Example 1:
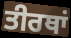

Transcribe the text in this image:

ਤੀਰਥਾਂ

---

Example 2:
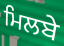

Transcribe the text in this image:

ਮਿਲਬੇ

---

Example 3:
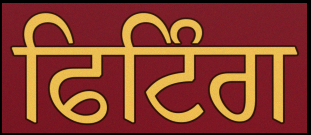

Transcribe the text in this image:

ਫਿਟਿੰਗ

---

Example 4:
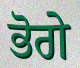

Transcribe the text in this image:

ਭੋਗੇ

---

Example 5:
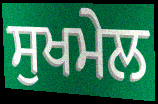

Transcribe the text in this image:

ਸੁਖਮੇਲ